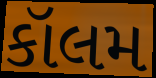
કૉલમ